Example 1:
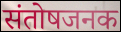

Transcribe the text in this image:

संतोषजनक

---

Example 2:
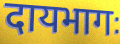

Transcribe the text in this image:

दायभागः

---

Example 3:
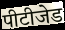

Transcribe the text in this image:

पीटीजेड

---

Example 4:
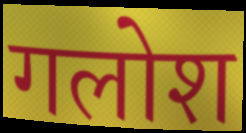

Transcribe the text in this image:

गलोश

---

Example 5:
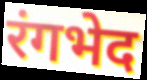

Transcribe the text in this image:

रंगभेद